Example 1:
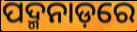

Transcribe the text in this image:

ପଦ୍ମନାଡ଼ରେ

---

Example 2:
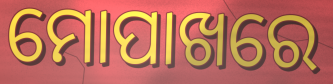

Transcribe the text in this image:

ମୋପାଖରେ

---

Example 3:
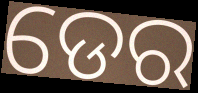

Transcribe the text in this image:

ଡେର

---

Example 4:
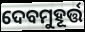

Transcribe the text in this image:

ଦେବମୁହୂର୍ତ୍ତ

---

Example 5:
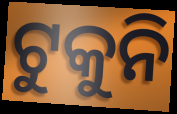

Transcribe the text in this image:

ଟୁକୁନି